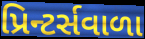
પ્રિન્ટર્સવાળા